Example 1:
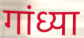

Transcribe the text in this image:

गांध्या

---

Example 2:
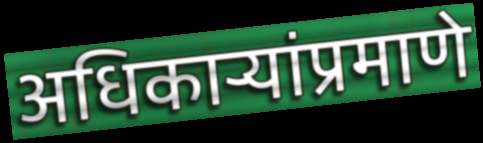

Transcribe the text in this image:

अधिकाऱ्यांप्रमाणे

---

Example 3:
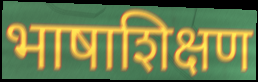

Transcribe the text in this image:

भाषाशिक्षण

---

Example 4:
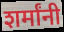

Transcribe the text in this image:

शर्मांनी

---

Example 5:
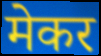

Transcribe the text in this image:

मेकर